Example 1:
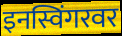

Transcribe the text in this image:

इनस्विंगरवर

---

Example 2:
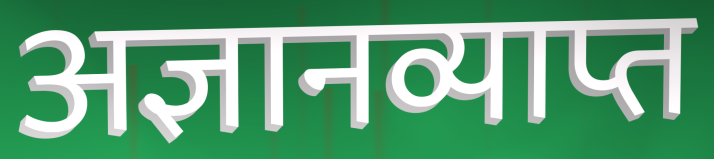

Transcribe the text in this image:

अज्ञानव्याप्त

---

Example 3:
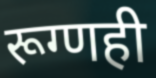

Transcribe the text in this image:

रूग्णही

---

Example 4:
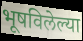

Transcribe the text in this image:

भूषविलेल्या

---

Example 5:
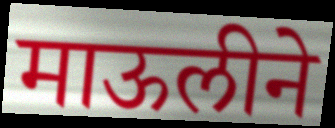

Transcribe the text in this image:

माऊलीने